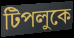
টিপলুকে